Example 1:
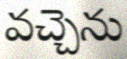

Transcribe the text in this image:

వచ్చెను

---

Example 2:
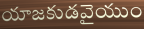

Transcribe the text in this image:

యాజకుడవైయుం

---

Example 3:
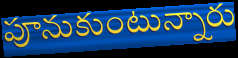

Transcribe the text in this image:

పూనుకుంటున్నారు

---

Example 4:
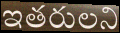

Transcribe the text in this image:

ఇతరులని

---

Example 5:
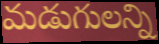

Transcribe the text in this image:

మడుగులన్ని